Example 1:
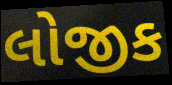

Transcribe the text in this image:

લોજીક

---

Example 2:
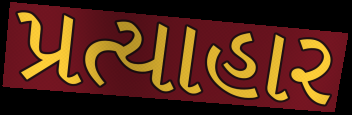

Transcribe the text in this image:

પ્રત્યાહાર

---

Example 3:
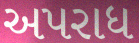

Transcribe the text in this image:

અપરાધ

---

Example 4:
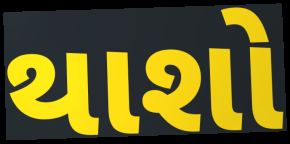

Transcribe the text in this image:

થાશો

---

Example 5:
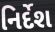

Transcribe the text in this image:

નિર્દેશ